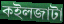
কইলজাটা